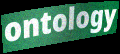
ontology